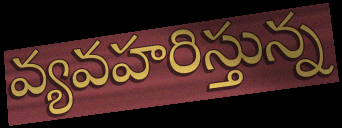
వ్యవహరిస్తున్న